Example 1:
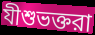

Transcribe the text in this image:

যীশুভক্তরা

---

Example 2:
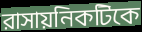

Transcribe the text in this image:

রাসায়নিকটিকে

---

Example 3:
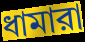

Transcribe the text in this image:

ধামারা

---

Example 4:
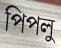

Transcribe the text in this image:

পিপলু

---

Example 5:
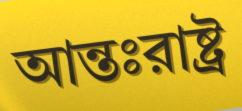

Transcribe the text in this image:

আন্তঃরাষ্ট্র